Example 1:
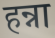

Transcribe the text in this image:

हन्ना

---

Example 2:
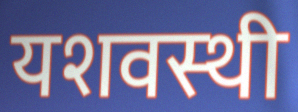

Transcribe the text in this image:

यशवस्थी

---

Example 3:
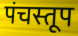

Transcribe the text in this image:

पंचस्तूप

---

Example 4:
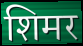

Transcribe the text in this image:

शिमर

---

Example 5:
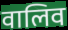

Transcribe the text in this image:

वालिव